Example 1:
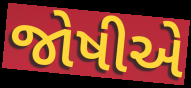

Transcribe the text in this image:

જોષીએ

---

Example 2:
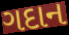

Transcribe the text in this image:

ગદાન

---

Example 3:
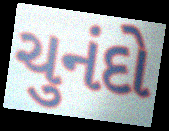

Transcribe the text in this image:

ચુનંદો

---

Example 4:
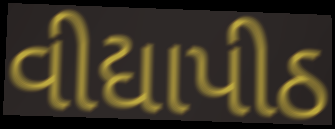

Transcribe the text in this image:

વીદ્યાપીઠ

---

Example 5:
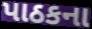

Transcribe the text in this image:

પાઠકના